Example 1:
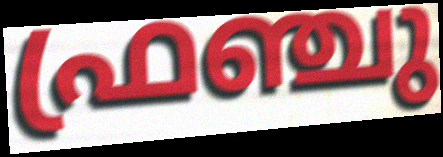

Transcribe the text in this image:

ഫ്രഞ്ചു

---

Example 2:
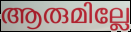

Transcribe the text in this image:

ആരുമില്ലേ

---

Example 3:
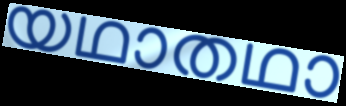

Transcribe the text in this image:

യഥാതഥാ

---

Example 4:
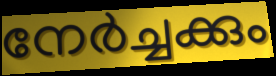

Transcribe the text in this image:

നേർച്ചക്കും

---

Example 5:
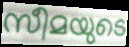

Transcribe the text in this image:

സീമയുടെ